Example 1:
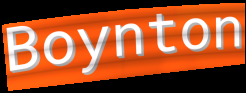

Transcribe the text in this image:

Boynton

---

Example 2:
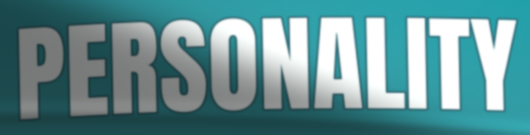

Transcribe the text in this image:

PERSONALITY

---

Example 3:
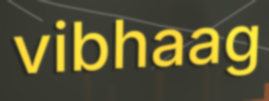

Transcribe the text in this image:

vibhaag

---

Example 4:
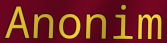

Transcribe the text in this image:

Anonim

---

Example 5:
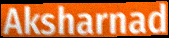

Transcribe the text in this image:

Aksharnad